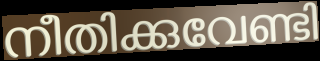
നീതിക്കുവേണ്ടി